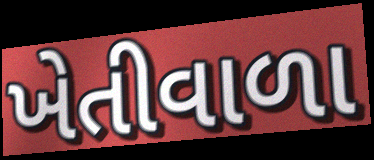
ખેતીવાળા